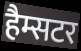
हैम्सटर